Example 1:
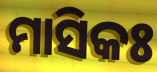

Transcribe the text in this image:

ମାସିକଃ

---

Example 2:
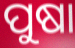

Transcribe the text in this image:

ପୁଷା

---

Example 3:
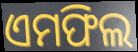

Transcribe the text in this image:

ଏମଫିଲ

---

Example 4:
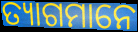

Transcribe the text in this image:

ତ୍ୟାଗମାନେ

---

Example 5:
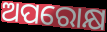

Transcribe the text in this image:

ଅପରୋକ୍ଷ